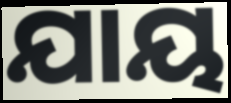
ଯାୟ